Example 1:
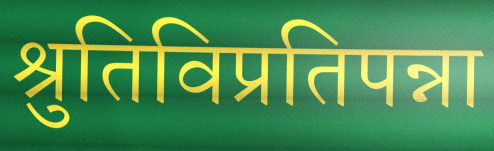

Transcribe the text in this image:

श्रुतिविप्रतिपन्ना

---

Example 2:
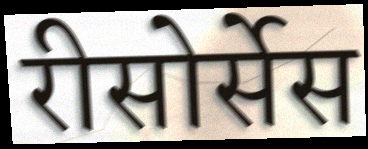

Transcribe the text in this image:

रीसोर्सेस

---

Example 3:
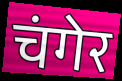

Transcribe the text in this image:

चंगेर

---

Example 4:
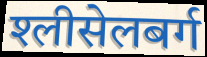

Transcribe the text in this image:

श्लीसेलबर्ग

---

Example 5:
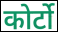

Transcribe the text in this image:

कोर्टो